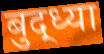
बुद्ध्या